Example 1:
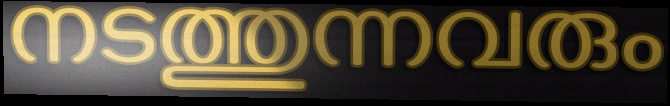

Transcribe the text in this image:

നടത്തുന്നവരും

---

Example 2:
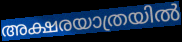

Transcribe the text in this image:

അക്ഷരയാത്രയിൽ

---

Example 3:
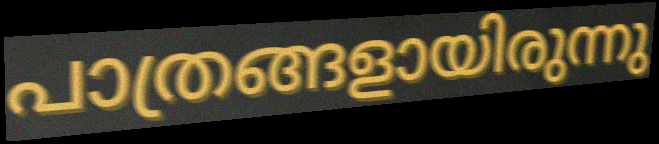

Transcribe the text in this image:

പാത്രങ്ങളായിരുന്നു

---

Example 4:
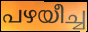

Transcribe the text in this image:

പഴയീച്ച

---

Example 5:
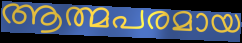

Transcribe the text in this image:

ആത്മപരമായ